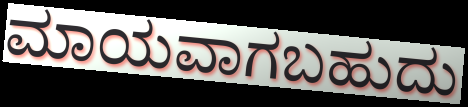
ಮಾಯವಾಗಬಹುದು